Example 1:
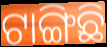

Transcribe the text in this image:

ଟାଙ୍ଗିଛି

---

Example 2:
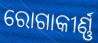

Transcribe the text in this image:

ରୋଗାକୀର୍ଣ୍ଣ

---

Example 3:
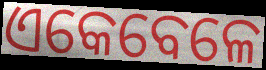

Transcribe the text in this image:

ଏକେବେଳେ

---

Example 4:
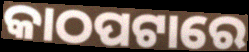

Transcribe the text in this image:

କାଠପଟାରେ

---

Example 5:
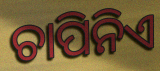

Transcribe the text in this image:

ଚାପିନିଏ